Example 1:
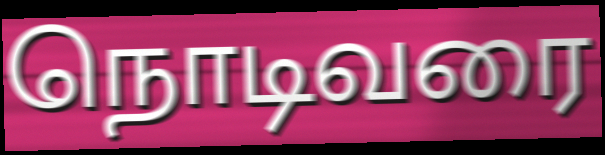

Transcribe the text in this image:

நொடிவரை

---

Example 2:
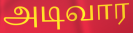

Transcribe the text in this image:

அடிவார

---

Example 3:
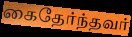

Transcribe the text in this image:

கைதேர்ந்தவர்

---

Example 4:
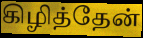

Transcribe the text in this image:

கிழித்தேன்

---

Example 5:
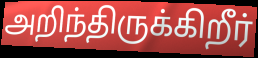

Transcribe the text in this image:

அறிந்திருக்கிறீர்